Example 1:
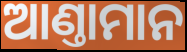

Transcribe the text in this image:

ଆଣ୍ତାମାନ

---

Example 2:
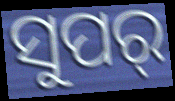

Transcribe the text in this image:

ସୁପର୍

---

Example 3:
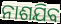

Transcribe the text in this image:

ନାଶଯିବ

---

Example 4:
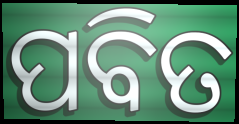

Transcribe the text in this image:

ପବିତ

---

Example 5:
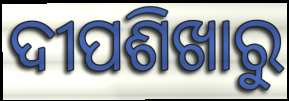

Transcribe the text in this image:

ଦୀପଶିଖାରୁ